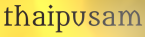
thaipusam